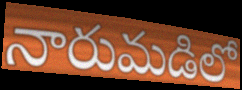
నారుమడిలో